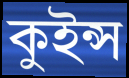
কুইন্স